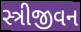
સ્ત્રીજીવન